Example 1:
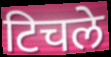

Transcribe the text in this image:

टिचले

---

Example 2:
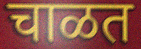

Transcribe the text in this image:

चाळत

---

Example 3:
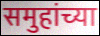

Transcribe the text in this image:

समुहांच्या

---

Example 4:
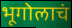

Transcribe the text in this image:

भूगोलाचं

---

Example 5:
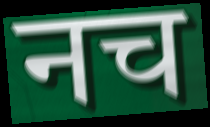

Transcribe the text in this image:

नच